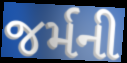
જર્મની